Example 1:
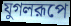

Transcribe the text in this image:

যুগলরূপে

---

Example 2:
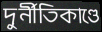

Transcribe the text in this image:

দুর্নীতিকাণ্ডে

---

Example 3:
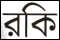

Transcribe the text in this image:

রকি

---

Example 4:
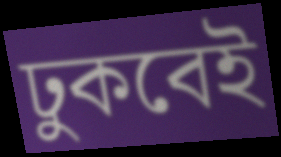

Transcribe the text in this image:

ঢুকবেই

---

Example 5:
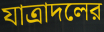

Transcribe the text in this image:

যাত্রাদলের